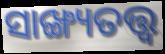
ସାଙ୍ଖ୍ୟତତ୍ତ୍ଵ